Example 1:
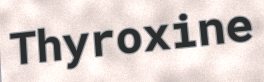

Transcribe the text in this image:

Thyroxine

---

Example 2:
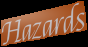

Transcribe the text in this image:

Hazards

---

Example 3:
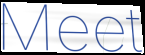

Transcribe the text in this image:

Meet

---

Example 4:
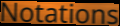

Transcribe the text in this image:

Notations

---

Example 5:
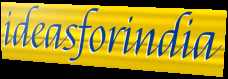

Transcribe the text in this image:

ideasforindia